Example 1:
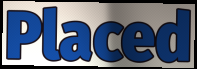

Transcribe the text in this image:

Placed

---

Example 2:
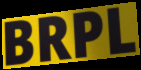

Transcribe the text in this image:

BRPL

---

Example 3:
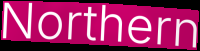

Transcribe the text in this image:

Northern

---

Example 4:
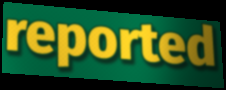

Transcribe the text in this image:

reported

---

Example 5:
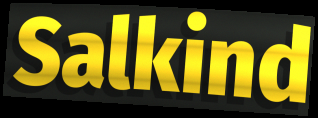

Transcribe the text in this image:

Salkind